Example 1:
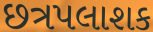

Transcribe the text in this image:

છત્રપલાશક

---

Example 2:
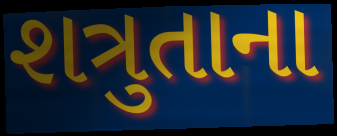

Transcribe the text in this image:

શત્રુતાના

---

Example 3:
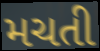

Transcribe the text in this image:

મચતી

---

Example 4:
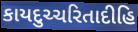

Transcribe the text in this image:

કાયદુચ્ચરિતાદીહિ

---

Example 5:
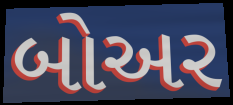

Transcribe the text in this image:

બોઅર